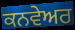
ਕਨਵੇਅਰ